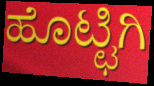
ಹೊಟ್ಟಿಗಿ